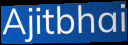
Ajitbhai